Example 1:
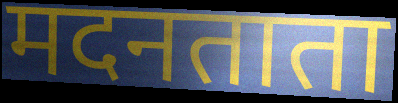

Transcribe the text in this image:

मदनताता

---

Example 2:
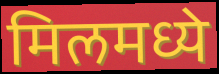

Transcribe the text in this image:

मिलमध्ये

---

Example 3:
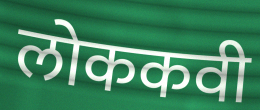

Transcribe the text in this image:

लोककवी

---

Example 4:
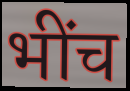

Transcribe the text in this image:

भींच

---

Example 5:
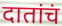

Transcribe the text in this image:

दातांचं